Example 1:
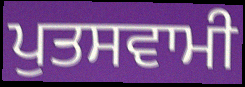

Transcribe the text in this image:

ਪੁਤਸਵਾਮੀ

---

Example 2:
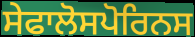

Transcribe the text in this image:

ਸੇਫਾਲੋਸਪੋਰਿਨਸ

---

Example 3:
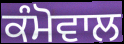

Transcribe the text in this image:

ਕੰਮੋਵਾਲ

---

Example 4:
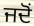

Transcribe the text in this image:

ਜਦੋਂ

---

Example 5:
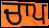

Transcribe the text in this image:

ਚਾਪ